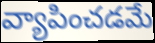
వ్యాపించడమే